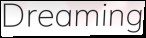
Dreaming